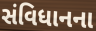
સંવિધાનના